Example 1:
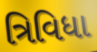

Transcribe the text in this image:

ત્રિવિધા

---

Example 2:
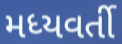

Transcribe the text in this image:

મધ્યવર્તી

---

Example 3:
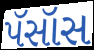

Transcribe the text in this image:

પૅસૉસ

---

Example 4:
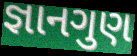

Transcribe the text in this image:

જ્ઞાનગુણ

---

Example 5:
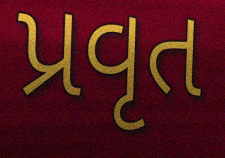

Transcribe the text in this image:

પ્રવૃત